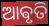
ଆଵୃତି